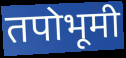
तपोभूमी